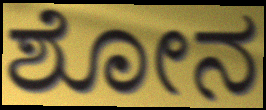
ಶೋನ